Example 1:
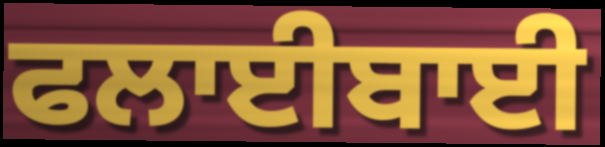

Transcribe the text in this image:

ਫਲਾਈਬਾਈ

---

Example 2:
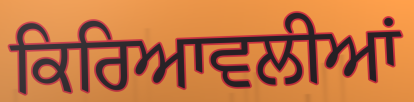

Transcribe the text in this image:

ਕਿਰਿਆਵਲੀਆਂ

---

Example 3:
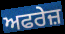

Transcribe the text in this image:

ਅਫਰੇਜ਼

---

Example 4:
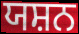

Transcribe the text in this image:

ਯਸ਼ਨ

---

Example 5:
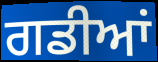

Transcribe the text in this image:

ਗਡੀਆਂ